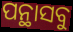
ପନ୍ଥାସବୁ